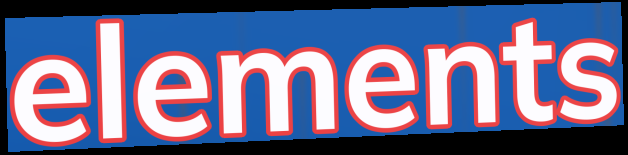
elements